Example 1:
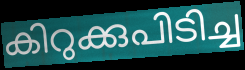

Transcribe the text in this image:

കിറുക്കുപിടിച്ച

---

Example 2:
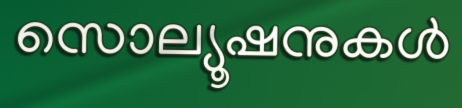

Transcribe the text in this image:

സൊല്യൂഷനുകൾ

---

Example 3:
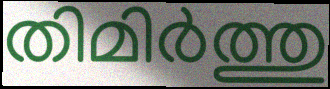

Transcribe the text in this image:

തിമിർത്തു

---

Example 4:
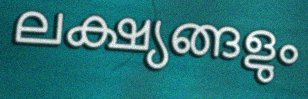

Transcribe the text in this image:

ലക്ഷ്യങ്ങളും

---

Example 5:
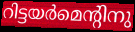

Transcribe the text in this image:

റിട്ടയർമെന്റിനു